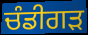
ਚੰਡੀਗਡ਼